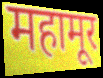
महामूर